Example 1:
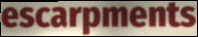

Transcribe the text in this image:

escarpments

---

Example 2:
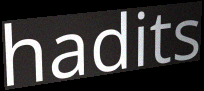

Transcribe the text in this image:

hadits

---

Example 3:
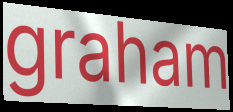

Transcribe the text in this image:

graham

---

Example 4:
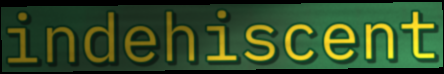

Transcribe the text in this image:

indehiscent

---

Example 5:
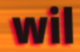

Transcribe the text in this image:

wil